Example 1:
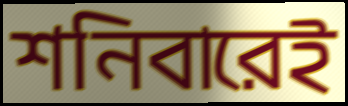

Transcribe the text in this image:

শনিবারেই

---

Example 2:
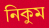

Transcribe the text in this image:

নিকুম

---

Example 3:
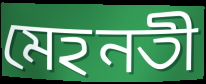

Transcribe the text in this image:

মেহনতী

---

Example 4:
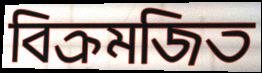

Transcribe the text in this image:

বিক্রমজিত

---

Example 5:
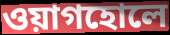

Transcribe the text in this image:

ওয়াগহোলে